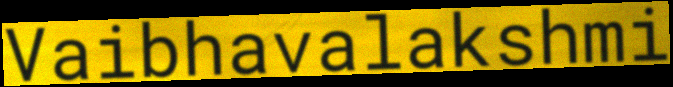
Vaibhavalakshmi